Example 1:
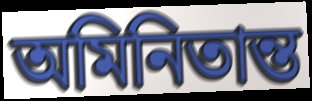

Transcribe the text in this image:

অমিনিতান্ত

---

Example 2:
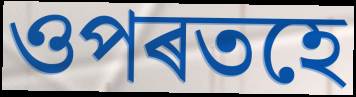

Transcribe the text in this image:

ওপৰতহে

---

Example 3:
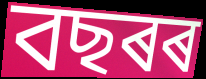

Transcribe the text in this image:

বছৰৰ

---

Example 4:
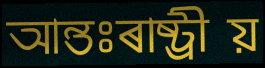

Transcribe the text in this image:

আন্তঃৰাষ্ট্ৰীয়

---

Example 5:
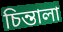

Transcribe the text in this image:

চিন্তালা